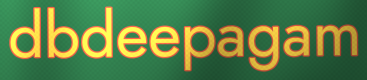
dbdeepagam